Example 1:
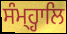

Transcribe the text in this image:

ਸੰਮ੍ਹ੍ਹਾਲਿ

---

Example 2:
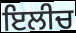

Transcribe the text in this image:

ਇਲੀਚ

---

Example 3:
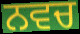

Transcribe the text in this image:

ਨਵਚ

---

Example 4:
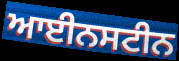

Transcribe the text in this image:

ਆਈਨਸਟੀਨ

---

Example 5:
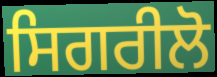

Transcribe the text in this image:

ਸਿਗਰੀਲੋ